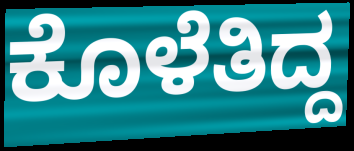
ಕೊಳೆತಿದ್ದ